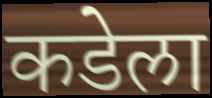
कडेला